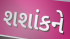
શશાંકને